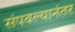
संपवल्यानंतर